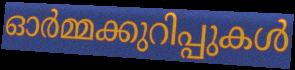
ഓർമ്മക്കുറിപ്പുകൾ